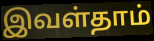
இவள்தாம்